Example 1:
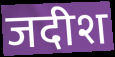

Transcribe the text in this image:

जदीश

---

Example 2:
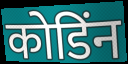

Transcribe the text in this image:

कोडिंन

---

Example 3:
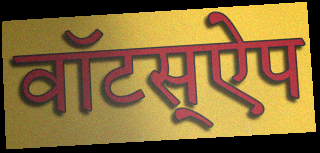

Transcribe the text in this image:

वॉटस्ऐप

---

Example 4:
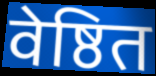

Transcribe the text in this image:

वेष्ठित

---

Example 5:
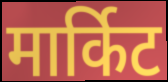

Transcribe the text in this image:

मार्किट